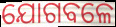
ଯୋଗବଳେ